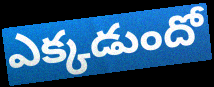
ఎక్కడుందో